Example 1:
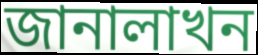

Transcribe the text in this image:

জানালাখন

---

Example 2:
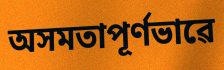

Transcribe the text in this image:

অসমতাপূৰ্ণভাৱে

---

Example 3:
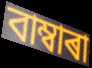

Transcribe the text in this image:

বাম্বাৰা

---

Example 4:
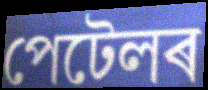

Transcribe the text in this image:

পেটেলৰ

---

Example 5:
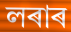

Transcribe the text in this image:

লৰাৰ